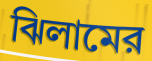
ঝিলামের